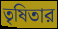
তৃষিতার